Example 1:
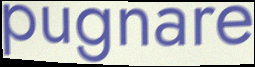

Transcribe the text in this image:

pugnare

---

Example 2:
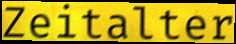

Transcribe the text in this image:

Zeitalter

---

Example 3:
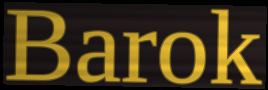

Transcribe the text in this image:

Barok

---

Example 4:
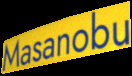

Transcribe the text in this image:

Masanobu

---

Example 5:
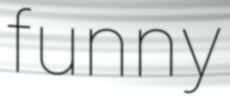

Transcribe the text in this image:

funny